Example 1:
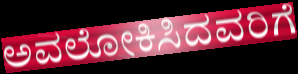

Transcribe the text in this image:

ಅವಲೋಕಿಸಿದವರಿಗೆ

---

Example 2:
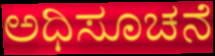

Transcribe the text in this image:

ಅಧಿಸೂಚನೆ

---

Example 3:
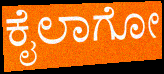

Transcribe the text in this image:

ಕೈಲಾಗೋ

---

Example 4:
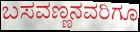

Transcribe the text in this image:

ಬಸವಣ್ಣನವರಿಗೂ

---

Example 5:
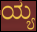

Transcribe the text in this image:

ಯ್ಯ